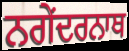
ਨਗੇਂਦਰਨਾਥ